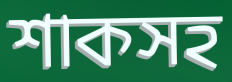
শাকসহ